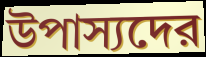
উপাস্যদের